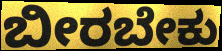
ಬೀರಬೇಕು